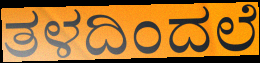
ತಳದಿಂದಲೆ